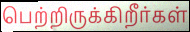
பெற்றிருக்கிறீர்கள்